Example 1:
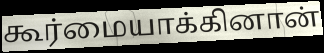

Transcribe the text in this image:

கூர்மையாக்கினான்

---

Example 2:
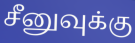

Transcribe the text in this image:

சீனுவுக்கு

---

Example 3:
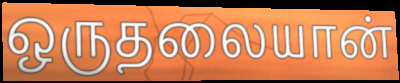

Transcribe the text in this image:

ஒருதலையான்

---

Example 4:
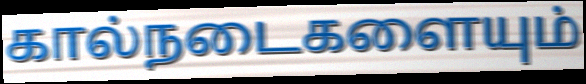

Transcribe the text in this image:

கால்நடைகளையும்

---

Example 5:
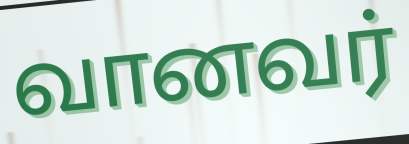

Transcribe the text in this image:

வானவர்